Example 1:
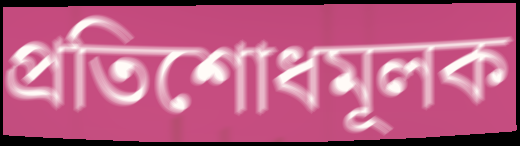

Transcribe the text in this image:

প্রতিশোধমূলক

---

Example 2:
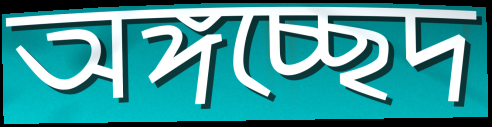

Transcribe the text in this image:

অঙ্গচ্ছেদ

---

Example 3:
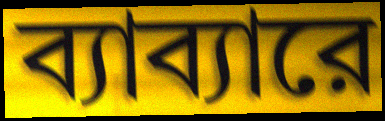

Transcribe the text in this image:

ব্যাব্যারে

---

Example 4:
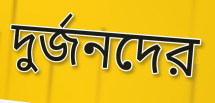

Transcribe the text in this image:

দুর্জনদের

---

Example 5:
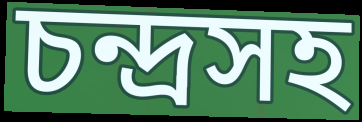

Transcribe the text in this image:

চন্দ্রসহ